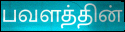
பவளத்தின்